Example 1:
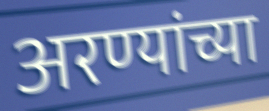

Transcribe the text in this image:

अरण्यांच्या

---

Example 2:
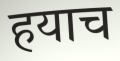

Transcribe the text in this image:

हयाच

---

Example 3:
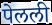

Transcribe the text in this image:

पेलली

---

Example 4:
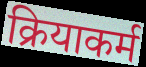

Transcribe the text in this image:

क्रियाकर्म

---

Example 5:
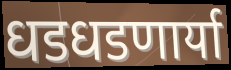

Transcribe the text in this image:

धडधडणार्या